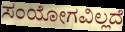
ಸಂಯೋಗವಿಲ್ಲದೆ